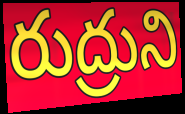
రుద్రుని